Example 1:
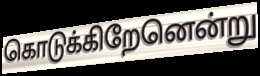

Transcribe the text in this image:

கொடுக்கிறேனென்று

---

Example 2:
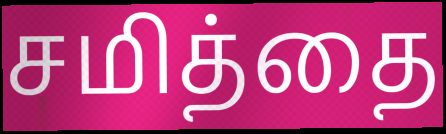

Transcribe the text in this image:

சமித்தை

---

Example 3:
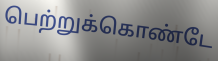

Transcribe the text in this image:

பெற்றுக்கொண்டே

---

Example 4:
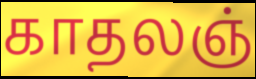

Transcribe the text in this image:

காதலஞ்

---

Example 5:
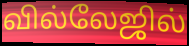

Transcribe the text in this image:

வில்லேஜில்